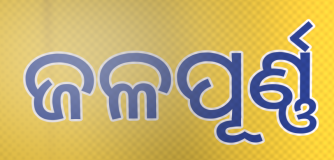
ଜଳପୂର୍ଣ୍ଣ